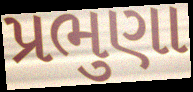
પ્રભુણા